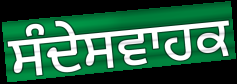
ਸੰਦੇਸਵਾਹਕ